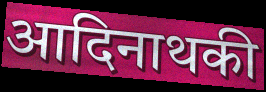
आदिनाथकी